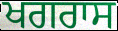
ਖਗਰਾਸ